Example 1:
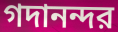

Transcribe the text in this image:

গদানন্দর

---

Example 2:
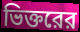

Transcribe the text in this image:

ভিক্তরের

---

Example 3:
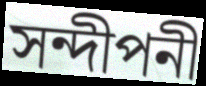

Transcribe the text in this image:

সন্দীপনী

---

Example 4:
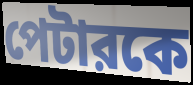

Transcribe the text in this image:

পেটারকে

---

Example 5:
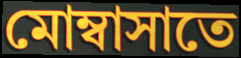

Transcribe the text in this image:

মোম্বাসাতে